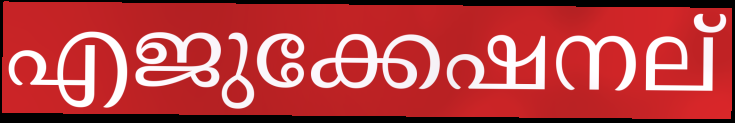
എജുക്കേഷനല്